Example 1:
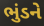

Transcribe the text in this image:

ભુંડને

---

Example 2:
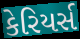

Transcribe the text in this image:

કેરિયર્સ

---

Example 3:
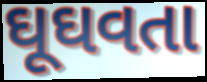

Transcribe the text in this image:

ઘૂઘવતા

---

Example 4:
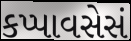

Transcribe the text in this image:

કપ્પાવસેસં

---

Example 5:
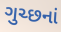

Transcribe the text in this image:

ગુચ્છનાં